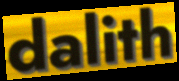
dalith